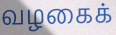
வழகைக்